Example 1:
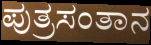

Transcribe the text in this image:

ಪುತ್ರಸಂತಾನ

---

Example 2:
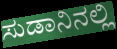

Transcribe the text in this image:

ಸುಡಾನಿನಲ್ಲಿ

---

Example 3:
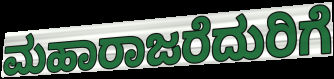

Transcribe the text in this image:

ಮಹಾರಾಜರೆದುರಿಗೆ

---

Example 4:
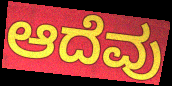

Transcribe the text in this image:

ಆದೆವು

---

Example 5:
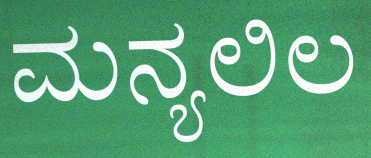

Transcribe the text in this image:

ಮನ್ಯಲಿಲ